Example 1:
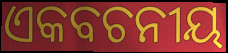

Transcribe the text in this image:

ଏକବଚନୀୟ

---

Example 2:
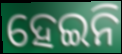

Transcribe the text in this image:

ହେଇନି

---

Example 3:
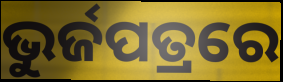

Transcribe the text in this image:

ଭୁର୍ଜପତ୍ରରେ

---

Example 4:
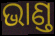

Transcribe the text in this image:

ଭାଣ୍ଡ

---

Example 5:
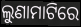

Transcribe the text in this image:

ଲୁଣାମାଟିରେ